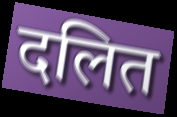
दलित